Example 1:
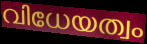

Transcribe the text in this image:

വിധേയത്വം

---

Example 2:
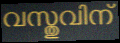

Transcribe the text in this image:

വസ്തുവിന്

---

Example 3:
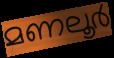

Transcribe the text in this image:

മണലൂർ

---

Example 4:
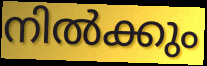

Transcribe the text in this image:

നിൽക്കും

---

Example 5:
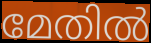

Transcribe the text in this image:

മേതിൽ